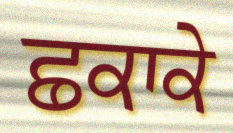
ਛਕਾਕੇ